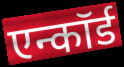
एन्कॉर्ड